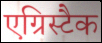
एग्रिस्टैक